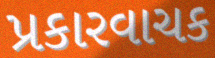
પ્રકારવાચક